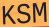
KSM